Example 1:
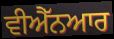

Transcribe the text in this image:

ਵੀਐੱਨਆਰ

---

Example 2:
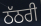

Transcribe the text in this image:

ਠੱਠਰੀ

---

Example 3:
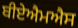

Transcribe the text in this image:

ਬੀਏਐਮਐਸ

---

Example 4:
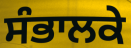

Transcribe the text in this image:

ਸੰਭਾਲਕੇ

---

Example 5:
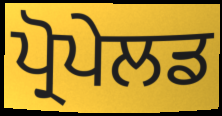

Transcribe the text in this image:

ਪ੍ਰੋਪੇਲਡ